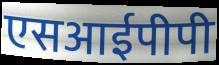
एसआईपीपी